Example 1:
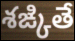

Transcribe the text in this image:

శఙ్కితే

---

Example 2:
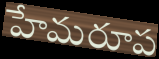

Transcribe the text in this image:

హేమరూప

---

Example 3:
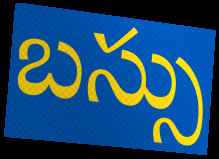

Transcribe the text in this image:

బస్సు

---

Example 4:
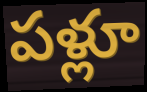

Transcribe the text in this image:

పళ్లూ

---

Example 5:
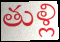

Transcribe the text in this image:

తుళ్లి